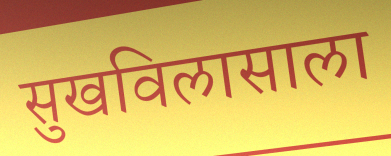
सुखविलासाला